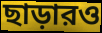
ছাড়ারও